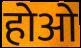
होओ